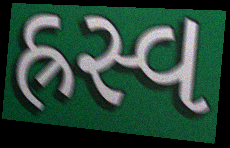
હ્રસ્વ